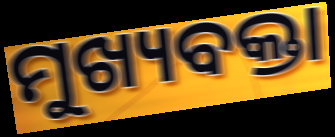
ମୁଖ୍ୟବକ୍ତା